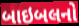
બાઇબલનો